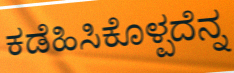
ಕಡೆಹಿಸಿಕೊಳ್ಪದೆನ್ನ